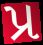
પ્ર